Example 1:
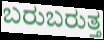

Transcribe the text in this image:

ಬರುಬರುತ್ತ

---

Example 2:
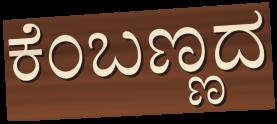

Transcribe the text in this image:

ಕೆಂಬಣ್ಣದ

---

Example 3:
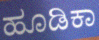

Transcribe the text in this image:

ಹೂಡಿಕಾ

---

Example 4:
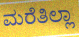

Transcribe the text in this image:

ಮರೆತಿಲ್ಲಾ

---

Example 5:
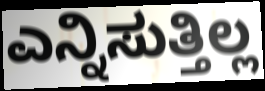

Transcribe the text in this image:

ಎನ್ನಿಸುತ್ತಿಲ್ಲ